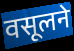
वसूलने